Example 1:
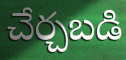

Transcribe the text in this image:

చేర్చబడి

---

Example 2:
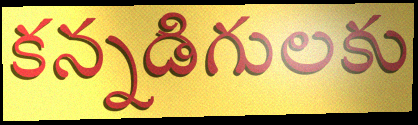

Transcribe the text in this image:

కన్నడిగులకు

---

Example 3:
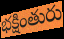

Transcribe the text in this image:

భక్షింతురు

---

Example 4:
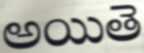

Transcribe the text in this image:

అయితె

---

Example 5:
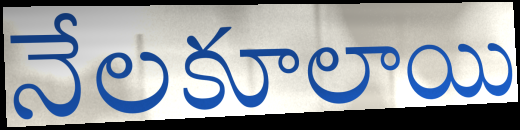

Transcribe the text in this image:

నేలకూలాయి